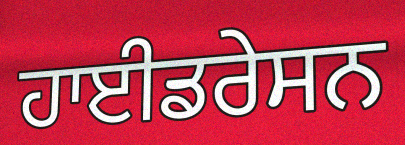
ਹਾਈਡਰੇਸਨ